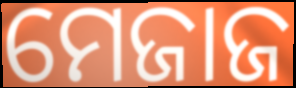
ମେଜାଜ